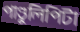
পাণ্ডুলিপিটা